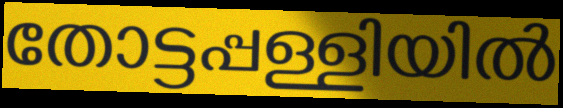
തോട്ടപ്പള്ളിയിൽ